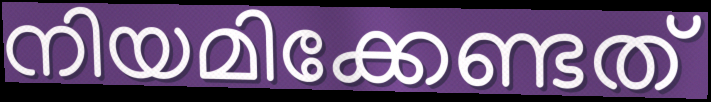
നിയമിക്കേണ്ടത്